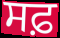
ਸਫ਼